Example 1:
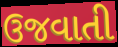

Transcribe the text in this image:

ઉજવાતી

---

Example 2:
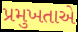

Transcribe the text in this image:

પ્રમુખતાએ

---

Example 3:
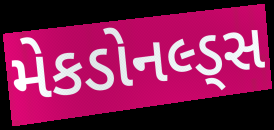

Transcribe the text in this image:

મેકડોનલ્ડ્સ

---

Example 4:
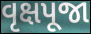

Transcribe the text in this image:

વૃક્ષપૂજા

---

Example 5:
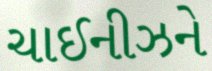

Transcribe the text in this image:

ચાઈનીઝને